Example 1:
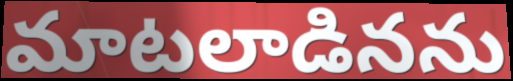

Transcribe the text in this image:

మాటలాడినను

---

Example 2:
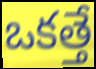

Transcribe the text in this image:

ఒకత్తే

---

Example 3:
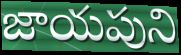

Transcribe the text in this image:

జాయపుని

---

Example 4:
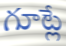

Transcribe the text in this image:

గూట్లే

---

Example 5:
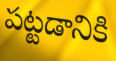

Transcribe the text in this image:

పట్టడానికి